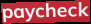
paycheck